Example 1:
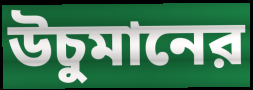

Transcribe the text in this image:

উচুমানের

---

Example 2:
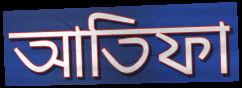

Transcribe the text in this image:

আতিফা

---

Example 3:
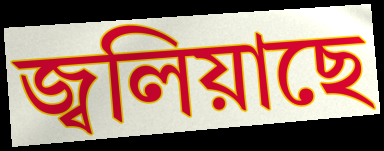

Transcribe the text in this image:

জ্বলিয়াছে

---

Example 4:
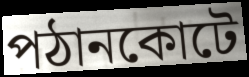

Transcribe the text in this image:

পঠানকোটে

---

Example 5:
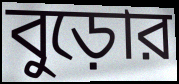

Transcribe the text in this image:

বুড়োর